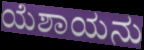
ಯೆಶಾಯನು